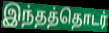
இந்தத்தொடர்